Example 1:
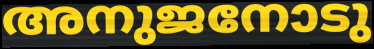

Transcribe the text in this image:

അനുജനോടു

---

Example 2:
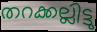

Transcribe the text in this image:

തറക്കല്ലിട്ടു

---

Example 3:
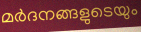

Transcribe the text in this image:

മർദനങ്ങളുടെയും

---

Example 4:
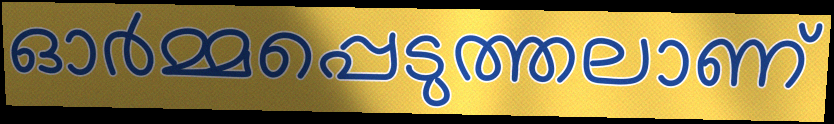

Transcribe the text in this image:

ഓർമ്മപ്പെടുത്തലാണ്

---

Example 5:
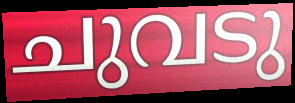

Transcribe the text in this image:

ചുവടു